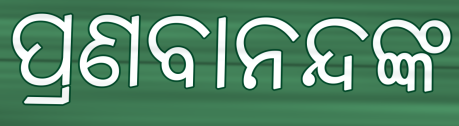
ପ୍ରଣବାନନ୍ଦଙ୍କ